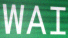
WAI